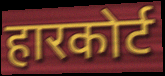
हारकोर्ट